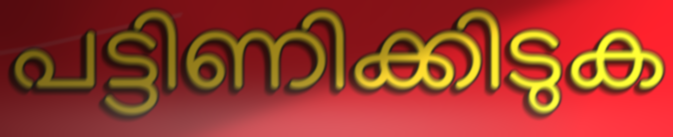
പട്ടിണിക്കിടുക